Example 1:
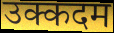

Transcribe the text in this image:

उक्कदम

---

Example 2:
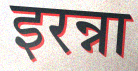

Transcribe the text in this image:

इरन्ना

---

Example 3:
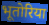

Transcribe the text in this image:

भूतोरिया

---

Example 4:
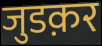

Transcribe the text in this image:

जुडक़र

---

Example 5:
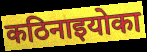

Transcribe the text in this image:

कठिनाइयोका